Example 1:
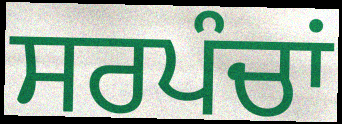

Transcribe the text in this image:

ਸਰਪੰਚਾਂ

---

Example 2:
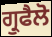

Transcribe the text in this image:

ਗ੍ਰੁਫੈਲੋ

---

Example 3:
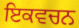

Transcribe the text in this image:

ਇਕਵਚਨ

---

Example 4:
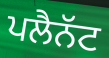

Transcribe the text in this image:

ਪਲੈਨੱਟ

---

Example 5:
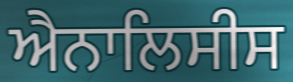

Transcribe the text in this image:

ਐਨਾਲਿਸੀਸ